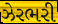
ઝેરભરી